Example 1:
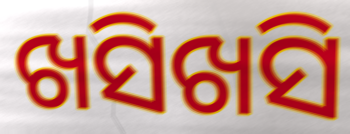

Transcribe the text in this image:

ଖସିଖସି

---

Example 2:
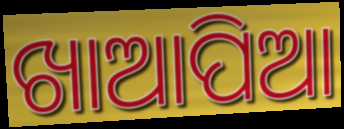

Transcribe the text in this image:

ଖାଆପିଆ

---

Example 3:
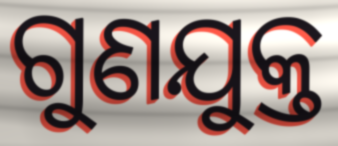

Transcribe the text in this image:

ଗୁଣଯୁକ୍ତ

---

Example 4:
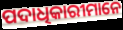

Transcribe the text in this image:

ପଦାଧିକାରୀମାନେ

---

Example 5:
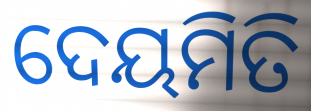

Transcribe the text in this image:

ଦେୟମିତି